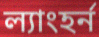
ল্যাংহর্ন